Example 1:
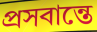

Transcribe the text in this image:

প্রসবান্তে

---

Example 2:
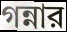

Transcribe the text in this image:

গন্নার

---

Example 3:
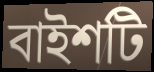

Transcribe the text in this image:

বাইশটি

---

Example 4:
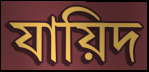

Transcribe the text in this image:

যায়িদ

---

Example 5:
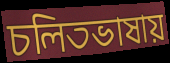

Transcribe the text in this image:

চলিতভাষায়